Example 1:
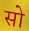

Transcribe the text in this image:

सो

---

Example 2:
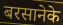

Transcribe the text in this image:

बरसानेके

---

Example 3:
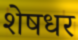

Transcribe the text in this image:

शेषधर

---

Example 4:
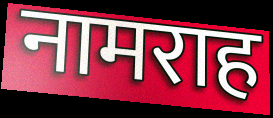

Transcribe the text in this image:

नामराह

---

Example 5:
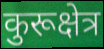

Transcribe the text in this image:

कुरूक्षेत्र